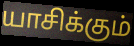
யாசிக்கும்